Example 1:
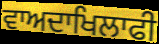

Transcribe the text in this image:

ਵਾਅਦਾਖਿਲਾਫੀ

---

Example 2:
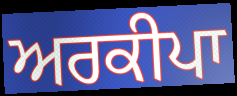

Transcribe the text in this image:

ਅਰਕੀਪਾ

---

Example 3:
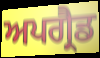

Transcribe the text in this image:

ਅਪਗ੍ਰੈਡ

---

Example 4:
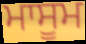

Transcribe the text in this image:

ਮਾਸੂਮ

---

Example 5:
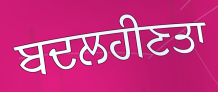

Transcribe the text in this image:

ਬਦਲਹੀਣਤਾ